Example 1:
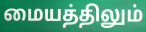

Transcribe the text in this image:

மையத்திலும்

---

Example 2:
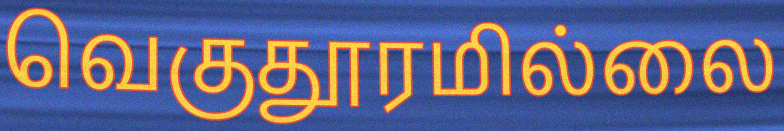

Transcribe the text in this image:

வெகுதூரமில்லை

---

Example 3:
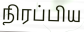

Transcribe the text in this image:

நிரப்பிய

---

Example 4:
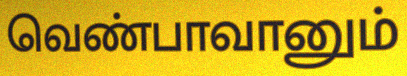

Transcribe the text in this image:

வெண்பாவானும்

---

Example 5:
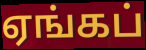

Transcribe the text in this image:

ஏங்கப்